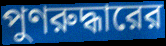
পুণরুদ্ধারের